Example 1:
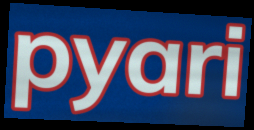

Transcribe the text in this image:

pyari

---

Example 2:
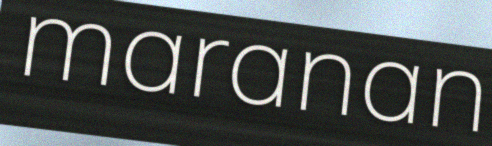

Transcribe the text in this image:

maranan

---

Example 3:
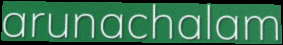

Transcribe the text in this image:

arunachalam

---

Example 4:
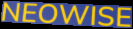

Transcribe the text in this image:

NEOWISE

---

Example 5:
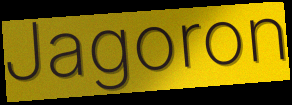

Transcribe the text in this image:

Jagoron